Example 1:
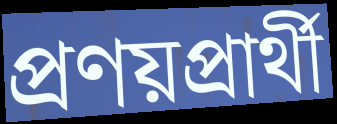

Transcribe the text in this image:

প্ৰণয়প্ৰাৰ্থী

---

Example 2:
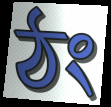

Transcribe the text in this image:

ঠং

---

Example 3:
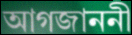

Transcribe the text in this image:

আগজাননী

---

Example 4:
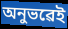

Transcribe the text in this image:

অনুভৱেই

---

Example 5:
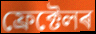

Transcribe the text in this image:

ফ্ৰেক্টেলৰ